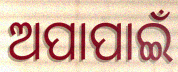
ଅପାପାଇଁ